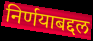
निर्णयाबद्दल